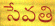
సేవతి